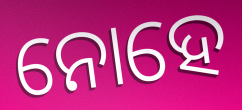
ନୋହେ